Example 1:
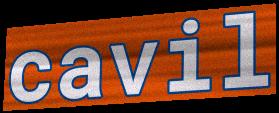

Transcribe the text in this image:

cavil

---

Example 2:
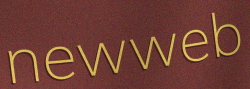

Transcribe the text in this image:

newweb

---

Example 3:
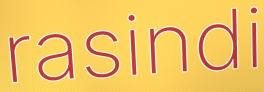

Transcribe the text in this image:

rasindi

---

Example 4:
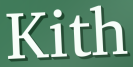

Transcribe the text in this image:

Kith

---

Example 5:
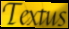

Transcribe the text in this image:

Textus